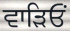
ਵਾੜਿਓਂ